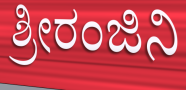
ಶ್ರೀರಂಜಿನಿ